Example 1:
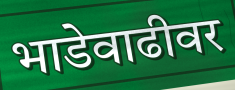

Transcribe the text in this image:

भाडेवाढीवर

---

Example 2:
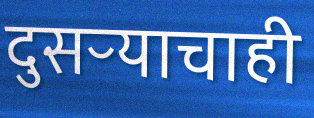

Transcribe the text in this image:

दुसऱ्याचाही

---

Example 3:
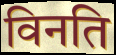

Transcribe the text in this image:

विनति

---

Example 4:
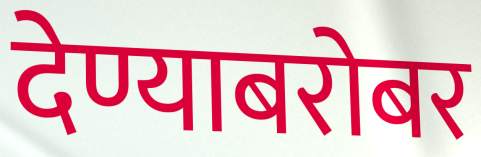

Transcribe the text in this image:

देण्याबरोबर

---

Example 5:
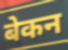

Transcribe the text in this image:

बेकन